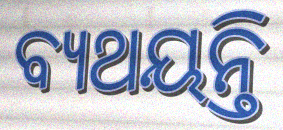
ବ୍ୟଥୟନ୍ତି